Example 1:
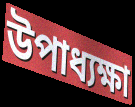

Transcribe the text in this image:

উপাধ্যক্ষা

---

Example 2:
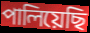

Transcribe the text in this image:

পালিয়েছি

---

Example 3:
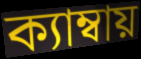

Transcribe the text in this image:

ক্যাম্বায়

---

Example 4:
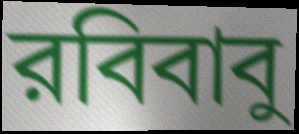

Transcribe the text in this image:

রবিবাবু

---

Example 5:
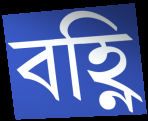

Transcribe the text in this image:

বহ্ণি